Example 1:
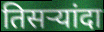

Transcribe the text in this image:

तिसऱ्यांदा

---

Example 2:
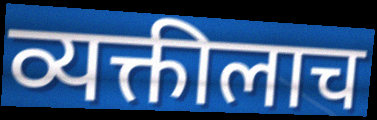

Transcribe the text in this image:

व्यक्तीलाच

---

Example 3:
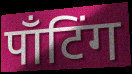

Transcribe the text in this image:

पाँटिंग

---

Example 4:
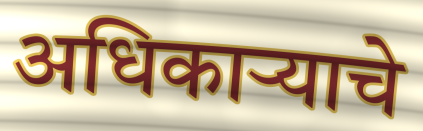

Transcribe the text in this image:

अधिकाऱ्याचे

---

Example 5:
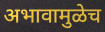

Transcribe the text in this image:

अभावामुळेच